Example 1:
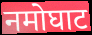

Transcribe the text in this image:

नमोघाट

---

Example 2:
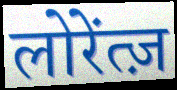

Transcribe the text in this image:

लोरेंत्ज़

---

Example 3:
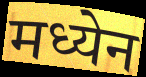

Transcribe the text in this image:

मध्येन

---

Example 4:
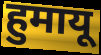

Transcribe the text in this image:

हुमायू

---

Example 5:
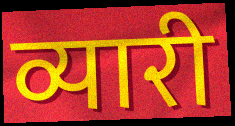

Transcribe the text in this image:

व्यारी